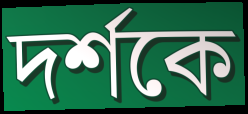
দৰ্শকে